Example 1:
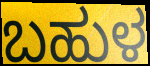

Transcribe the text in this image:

ಬಹುಳ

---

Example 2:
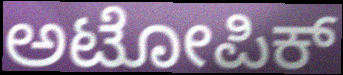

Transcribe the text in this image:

ಅಟೋಪಿಕ್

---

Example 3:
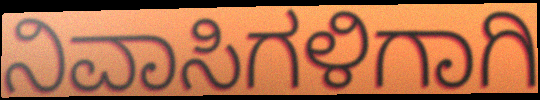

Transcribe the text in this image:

ನಿವಾಸಿಗಳಿಗಾಗಿ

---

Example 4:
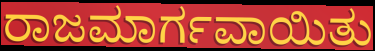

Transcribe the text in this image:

ರಾಜಮಾರ್ಗವಾಯಿತು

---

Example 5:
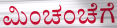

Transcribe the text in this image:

ಮಿಂಚಂಚೆಗೆ